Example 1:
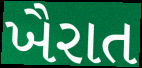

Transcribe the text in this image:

ખૈરાત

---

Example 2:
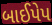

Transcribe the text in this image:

બાઈપેપ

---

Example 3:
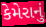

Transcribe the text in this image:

કેમેરાનું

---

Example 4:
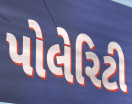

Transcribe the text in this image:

પોલેરિટી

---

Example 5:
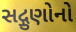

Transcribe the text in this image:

સદ્ગુણોનો